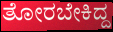
ತೋರಬೇಕಿದ್ದ